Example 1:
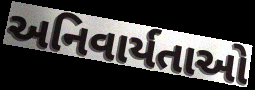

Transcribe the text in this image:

અનિવાર્યતાઓ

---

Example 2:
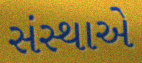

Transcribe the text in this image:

સંસ્થાએ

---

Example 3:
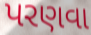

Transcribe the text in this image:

પરણવા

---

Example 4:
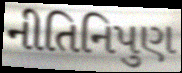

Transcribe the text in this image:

નીતિનિપુણ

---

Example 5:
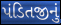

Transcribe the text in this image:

પંડિતજીનું